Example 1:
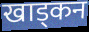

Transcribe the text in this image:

खाड्कन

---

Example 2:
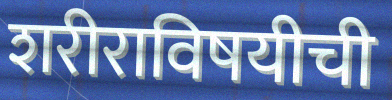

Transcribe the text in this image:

शरीराविषयीची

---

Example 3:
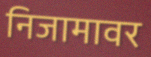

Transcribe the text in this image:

निजामावर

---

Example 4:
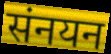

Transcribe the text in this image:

संनयन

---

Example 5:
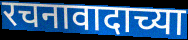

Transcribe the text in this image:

रचनावादाच्या